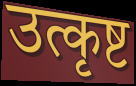
उत्कृष्ट